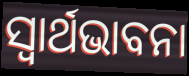
ସ୍ଵାର୍ଥଭାବନା